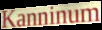
Kanninum